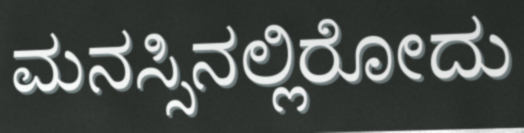
ಮನಸ್ಸಿನಲ್ಲಿರೋದು